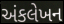
અંકલેખન